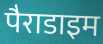
पैराडाइम